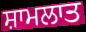
ਸ਼ਾਮਲਾਤ